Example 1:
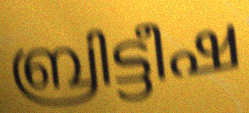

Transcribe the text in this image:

ബ്രിട്ടീഷ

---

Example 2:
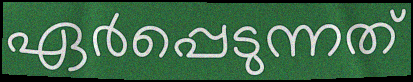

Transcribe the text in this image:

ഏർപ്പെടുന്നത്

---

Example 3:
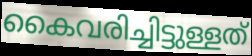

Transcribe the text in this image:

കൈവരിച്ചിട്ടുള്ളത്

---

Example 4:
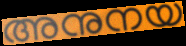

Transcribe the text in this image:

അനുനയ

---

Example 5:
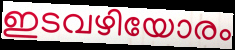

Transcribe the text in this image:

ഇടവഴിയോരം